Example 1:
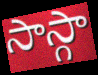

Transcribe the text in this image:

సాస్గా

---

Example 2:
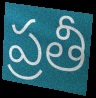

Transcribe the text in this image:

ప్రతీ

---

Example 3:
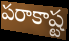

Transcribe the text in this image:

పరాకాష్ట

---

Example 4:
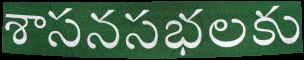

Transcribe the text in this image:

శాసనసభలకు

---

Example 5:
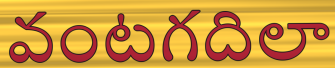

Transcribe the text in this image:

వంటగదిలా